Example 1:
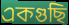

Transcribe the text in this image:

একগুছি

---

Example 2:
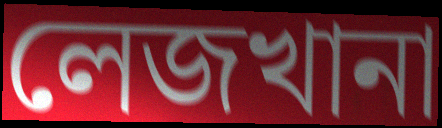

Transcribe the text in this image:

লেজখানা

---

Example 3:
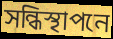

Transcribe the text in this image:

সন্ধিস্থাপনে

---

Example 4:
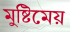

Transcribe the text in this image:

মুষ্টিমেয়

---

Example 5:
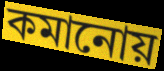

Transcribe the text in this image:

কমানোয়